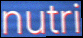
nutri